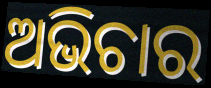
ଅଭିଚାର